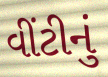
વીંટીનું